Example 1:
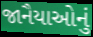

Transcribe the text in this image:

જાનૈયાઓનું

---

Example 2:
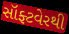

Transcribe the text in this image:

સૉફ્ટવેરથી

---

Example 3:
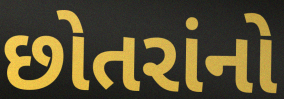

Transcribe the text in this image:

છોતરાંનો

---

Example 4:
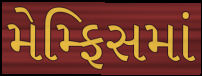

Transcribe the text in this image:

મેમ્ફિસમાં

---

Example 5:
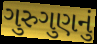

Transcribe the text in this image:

ગુરુગુણનું